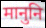
मानुनि